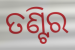
ତଣ୍ଟିର